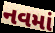
નવમાં